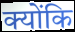
क्‍योंकि